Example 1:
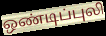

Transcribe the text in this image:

ஒண்டிப்புலி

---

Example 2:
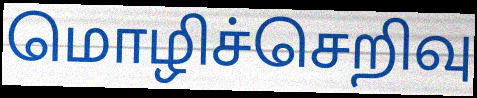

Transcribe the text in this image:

மொழிச்செறிவு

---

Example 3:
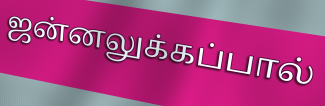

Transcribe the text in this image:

ஜன்னலுக்கப்பால்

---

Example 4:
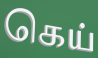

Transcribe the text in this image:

கெய்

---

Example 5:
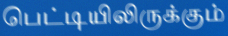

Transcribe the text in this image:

பெட்டியிலிருக்கும்